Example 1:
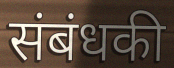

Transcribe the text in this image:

संबंधकी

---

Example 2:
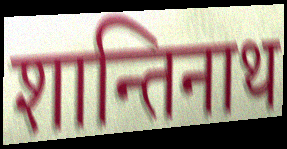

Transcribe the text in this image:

शान्तिनाथ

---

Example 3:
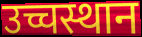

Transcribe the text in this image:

उच्चस्थान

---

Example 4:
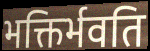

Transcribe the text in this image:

भक्तिर्भवति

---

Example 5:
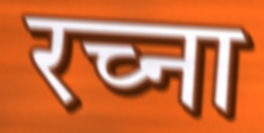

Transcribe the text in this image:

रच्ना